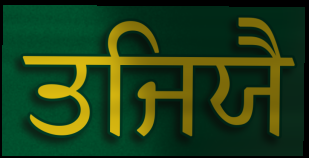
ਤਜਿਯੈ